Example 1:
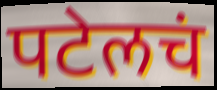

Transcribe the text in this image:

पटेलचं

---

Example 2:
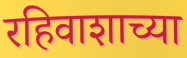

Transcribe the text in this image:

रहिवाशाच्या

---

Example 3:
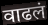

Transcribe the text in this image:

वाढलं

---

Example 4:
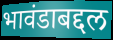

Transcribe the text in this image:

भावंडाबद्दल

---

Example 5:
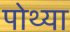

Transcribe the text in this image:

पोथ्या